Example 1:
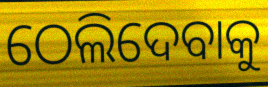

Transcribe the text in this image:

ଠେଲିଦେବାକୁ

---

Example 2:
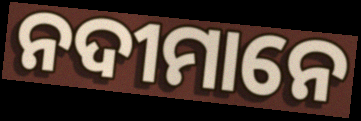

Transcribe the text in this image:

ନଦୀମାନେ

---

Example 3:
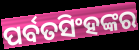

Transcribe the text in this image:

ପର୍ବତସିଂହଙ୍କର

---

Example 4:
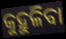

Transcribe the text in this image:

କୁହୁଳିବା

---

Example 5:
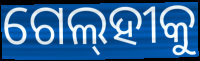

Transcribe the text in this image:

ଗେଲ୍‌ହୀକୁ